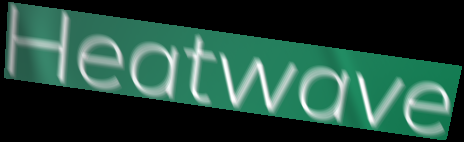
Heatwave